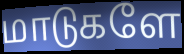
மாடுகளே